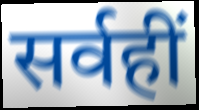
सर्वहीं